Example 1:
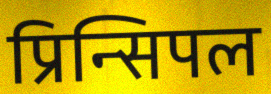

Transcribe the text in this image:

प्रिन्सिपल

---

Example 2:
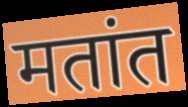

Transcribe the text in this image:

मतांत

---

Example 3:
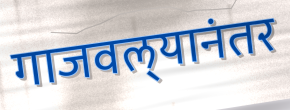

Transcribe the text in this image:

गाजवल्यानंतर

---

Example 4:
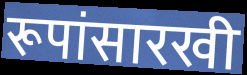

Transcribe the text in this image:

रूपांसारखी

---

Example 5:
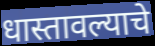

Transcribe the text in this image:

धास्तावल्याचे